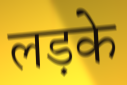
लड़के